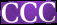
CCC